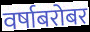
वर्षाबरोबर